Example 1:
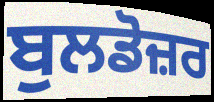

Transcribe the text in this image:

ਬੁਲਡੋਜ਼ਰ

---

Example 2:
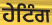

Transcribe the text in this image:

ਹੇਟਿੰਗ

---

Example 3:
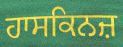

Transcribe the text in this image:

ਹਾਸਕਿਨਜ਼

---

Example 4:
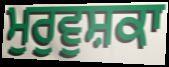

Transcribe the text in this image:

ਮੁਰੁਵੁਸ਼ਕਾ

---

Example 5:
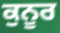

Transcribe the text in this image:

ਕੁਨੂਰ